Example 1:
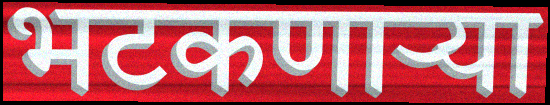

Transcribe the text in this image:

भटकणार्‍या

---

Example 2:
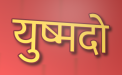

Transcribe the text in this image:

युष्मदो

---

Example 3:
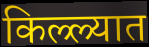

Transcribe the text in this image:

किल्ल्यात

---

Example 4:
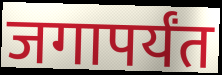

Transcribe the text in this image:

जगापर्यंत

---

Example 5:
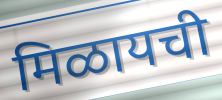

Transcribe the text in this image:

मिळायची